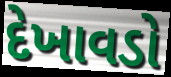
દેખાવડો